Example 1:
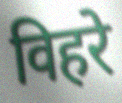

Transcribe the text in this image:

विहरे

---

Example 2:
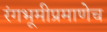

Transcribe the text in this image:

रंगभूमीप्रमाणेच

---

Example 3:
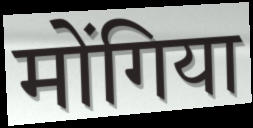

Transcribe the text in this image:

मोंगिया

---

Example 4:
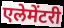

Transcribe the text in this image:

एलेमेंटरी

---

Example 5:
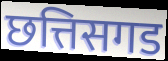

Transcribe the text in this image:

छत्तिसगड